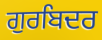
ਗੁਰਬਿਦਰ